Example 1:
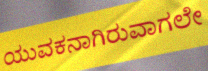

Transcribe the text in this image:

ಯುವಕನಾಗಿರುವಾಗಲೇ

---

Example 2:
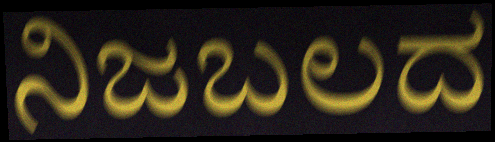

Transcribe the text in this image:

ನಿಜಬಲದ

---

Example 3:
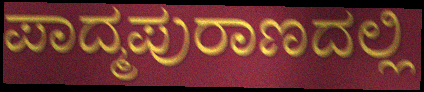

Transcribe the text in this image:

ಪಾದ್ಮಪುರಾಣದಲ್ಲಿ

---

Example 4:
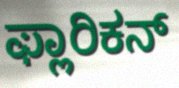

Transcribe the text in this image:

ಫ್ಲಾರಿಕನ್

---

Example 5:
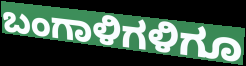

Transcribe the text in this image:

ಬಂಗಾಳಿಗಳಿಗೂ